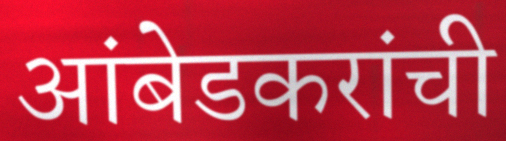
आंबेडकरांची